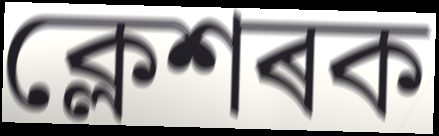
ক্লেশৰক